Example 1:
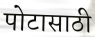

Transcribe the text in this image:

पोटासाठी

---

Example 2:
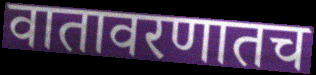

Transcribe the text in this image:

वातावरणातच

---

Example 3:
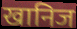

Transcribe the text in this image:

खानिज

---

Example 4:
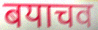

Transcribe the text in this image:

बयाचव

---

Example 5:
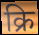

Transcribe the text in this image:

क्रि